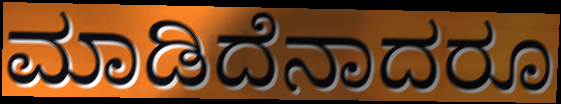
ಮಾಡಿದೆನಾದರೂ